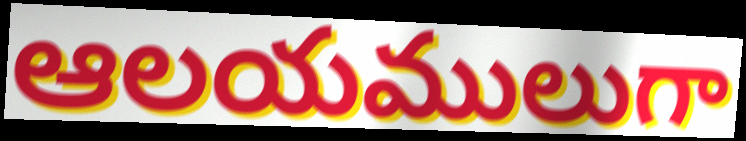
ఆలయములుగా